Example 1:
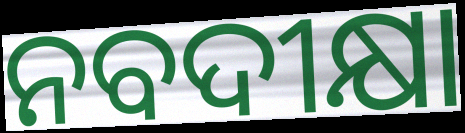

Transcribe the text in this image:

ନବଦୀକ୍ଷା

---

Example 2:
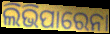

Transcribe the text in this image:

ଲିଭିପାରେନା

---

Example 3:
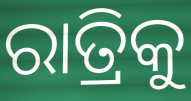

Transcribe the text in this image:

ରାତ୍ରିକୁ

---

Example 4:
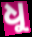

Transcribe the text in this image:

ଧୁ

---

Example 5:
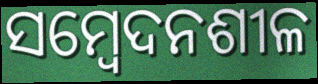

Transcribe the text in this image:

ସମ୍ବେଦନଶୀଳ